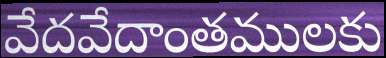
వేదవేదాంతములకు